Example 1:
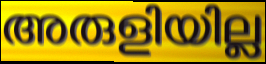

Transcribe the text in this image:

അരുളിയില്ല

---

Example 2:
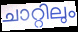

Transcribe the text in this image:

ചാറ്റിലും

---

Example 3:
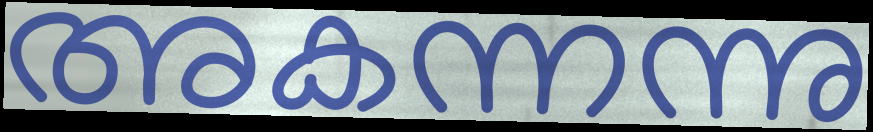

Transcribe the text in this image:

അകന്നന്നു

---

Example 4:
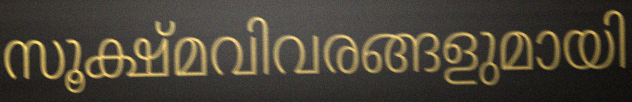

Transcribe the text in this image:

സൂക്ഷ്മവിവരങ്ങളുമായി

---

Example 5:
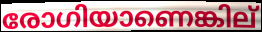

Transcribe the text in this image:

രോഗിയാണെങ്കില്